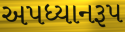
અપધ્યાનરૂપ